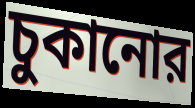
চুকানোর